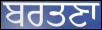
ਬਰਤਣਾ